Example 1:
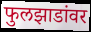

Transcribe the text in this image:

फुलझाडांवर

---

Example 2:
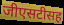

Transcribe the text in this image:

जीएसटीसह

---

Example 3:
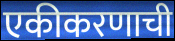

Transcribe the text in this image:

एकीकरणाची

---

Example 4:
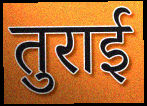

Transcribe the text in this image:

तुराई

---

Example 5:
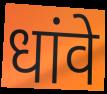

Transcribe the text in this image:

धांवे